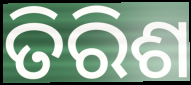
ତିରିଶ